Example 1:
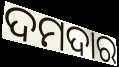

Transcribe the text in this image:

ଦମଦାର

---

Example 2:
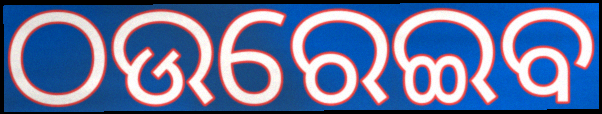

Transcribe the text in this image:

ଠଉରେଇବ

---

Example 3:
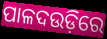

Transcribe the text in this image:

ପାଳଦଉଡ଼ିରେ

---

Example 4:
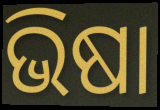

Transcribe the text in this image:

ଭିଷା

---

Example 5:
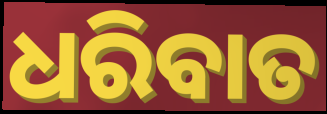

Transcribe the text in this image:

ଧରିବାତ